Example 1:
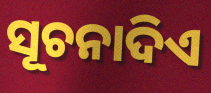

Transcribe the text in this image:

ସୂଚନାଦିଏ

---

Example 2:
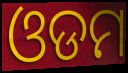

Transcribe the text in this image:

ଓଡମ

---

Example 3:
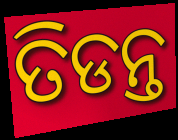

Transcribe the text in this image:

ତିଡନ୍ତ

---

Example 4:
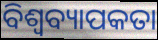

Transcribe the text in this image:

ବିଶ୍ୱବ୍ୟାପକତା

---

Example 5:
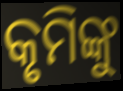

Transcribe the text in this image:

କୃମିଙ୍କୁ